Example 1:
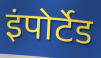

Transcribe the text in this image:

इंपोर्टेड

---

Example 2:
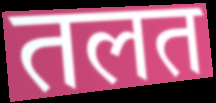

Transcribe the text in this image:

तलत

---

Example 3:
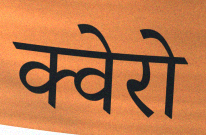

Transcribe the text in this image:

क्वेरो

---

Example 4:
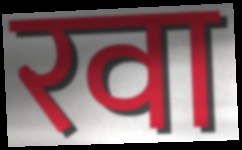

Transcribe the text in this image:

रवा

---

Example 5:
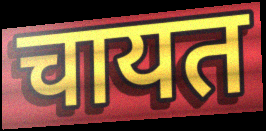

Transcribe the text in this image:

चायत